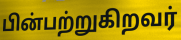
பின்பற்றுகிறவர்